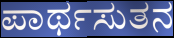
ಪಾರ್ಥಸುತನ